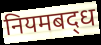
नियमबद्ध